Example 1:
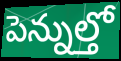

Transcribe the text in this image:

పెన్నుల్తో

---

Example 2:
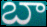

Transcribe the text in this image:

బా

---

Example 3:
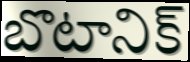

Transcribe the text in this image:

బొటానిక్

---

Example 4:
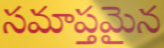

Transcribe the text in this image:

సమాప్తమైన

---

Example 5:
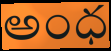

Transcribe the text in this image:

అంధ